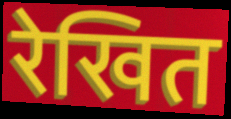
रेखित